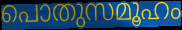
പൊതുസമൂഹം